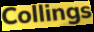
Collings